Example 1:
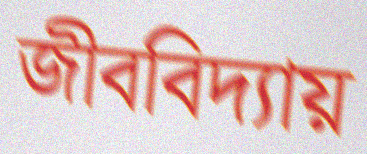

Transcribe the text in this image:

জীববিদ্যায়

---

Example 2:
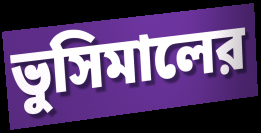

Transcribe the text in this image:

ভুসিমালের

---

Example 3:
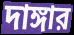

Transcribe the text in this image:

দাঙ্গার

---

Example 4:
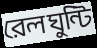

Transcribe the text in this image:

রেলঘুন্টি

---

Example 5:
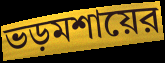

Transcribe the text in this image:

ভড়মশায়ের